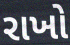
રાખો